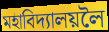
মহাবিদ্যালয়লৈ